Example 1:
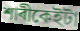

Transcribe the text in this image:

শাৰীকেইটা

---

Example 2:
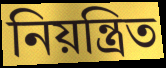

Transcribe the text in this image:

নিয়ন্ত্ৰিত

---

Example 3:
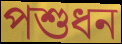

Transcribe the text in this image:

পশুধন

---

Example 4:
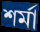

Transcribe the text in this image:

শৰ্মা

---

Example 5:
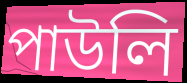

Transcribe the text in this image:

পাউলি